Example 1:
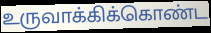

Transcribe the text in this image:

உருவாக்கிக்கொண்ட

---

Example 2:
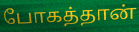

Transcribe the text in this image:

போகத்தான்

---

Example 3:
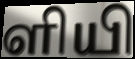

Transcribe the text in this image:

ளியி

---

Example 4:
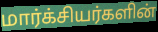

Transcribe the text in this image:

மார்க்சியர்களின்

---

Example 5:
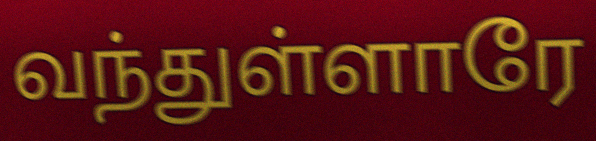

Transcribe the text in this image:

வந்துள்ளாரே